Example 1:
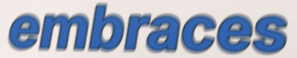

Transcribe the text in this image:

embraces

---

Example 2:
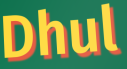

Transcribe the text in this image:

Dhul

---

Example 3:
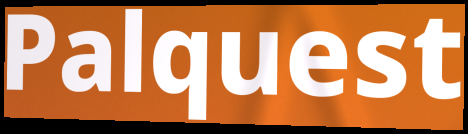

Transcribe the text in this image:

Palquest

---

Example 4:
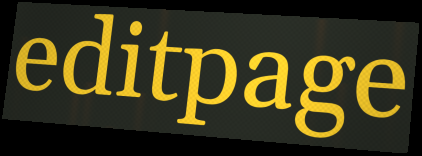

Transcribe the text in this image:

editpage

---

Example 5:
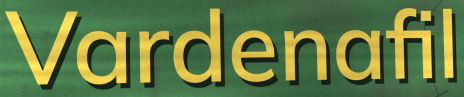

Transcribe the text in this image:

Vardenafil